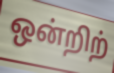
ஒன்றிற்